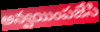
అన్వయింపజేసి